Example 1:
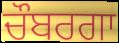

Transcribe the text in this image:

ਚੌਬਰਗਾ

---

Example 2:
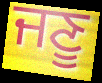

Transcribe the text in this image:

ਜਣੂ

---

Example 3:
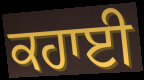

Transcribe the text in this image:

ਕਹਾਈ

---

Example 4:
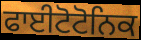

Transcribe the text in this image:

ਫਾਈਟੋਟੋਨਿਕ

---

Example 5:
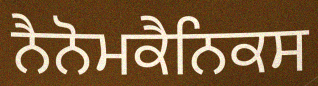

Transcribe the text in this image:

ਨੈਨੋਮਕੈਨਿਕਸ